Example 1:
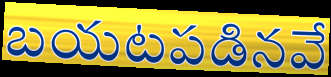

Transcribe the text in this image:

బయటపడినవే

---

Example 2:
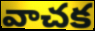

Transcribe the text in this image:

వాచక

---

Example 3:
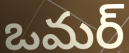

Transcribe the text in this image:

ఒమర్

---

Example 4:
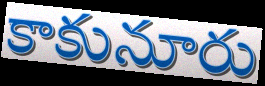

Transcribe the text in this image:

కాకునూరు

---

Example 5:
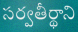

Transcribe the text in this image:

సర్వతీర్థాని